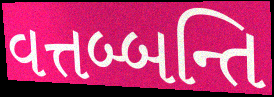
વત્તબ્બન્તિ